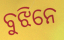
ବୁଝିନେ